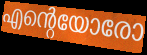
എന്റെയോരോ